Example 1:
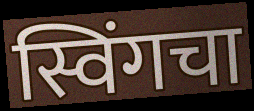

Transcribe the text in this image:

स्विंगचा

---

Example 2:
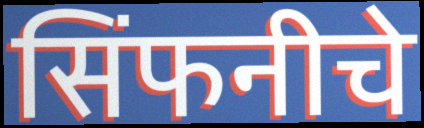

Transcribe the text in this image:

सिंफनीचे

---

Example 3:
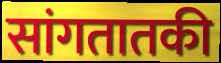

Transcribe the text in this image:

सांगतातकी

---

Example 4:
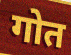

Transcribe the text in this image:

गोत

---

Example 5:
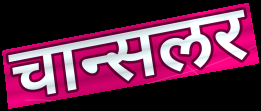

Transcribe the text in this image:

चान्सलर